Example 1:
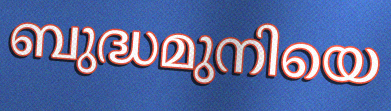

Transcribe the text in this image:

ബുദ്ധമുനിയെ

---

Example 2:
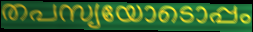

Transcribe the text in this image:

തപസ്യയോടൊപ്പം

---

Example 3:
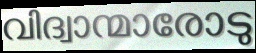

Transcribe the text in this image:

വിദ്വാന്മാരോടു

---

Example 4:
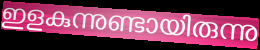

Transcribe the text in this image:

ഇളകുന്നുണ്ടായിരുന്നു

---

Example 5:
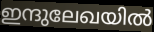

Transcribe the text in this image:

ഇന്ദുലേഖയിൽ